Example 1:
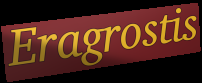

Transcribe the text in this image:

Eragrostis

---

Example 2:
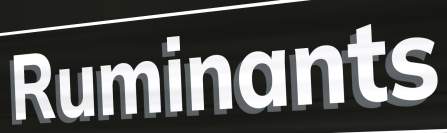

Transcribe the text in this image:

Ruminants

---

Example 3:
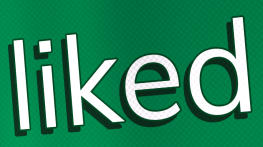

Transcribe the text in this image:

liked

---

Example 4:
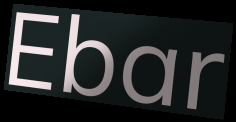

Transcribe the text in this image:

Ebar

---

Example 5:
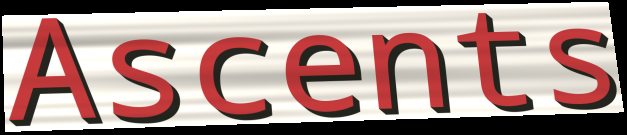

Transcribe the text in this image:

Ascents